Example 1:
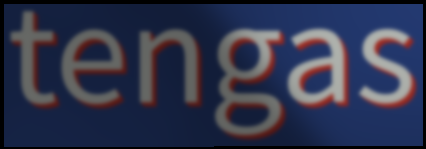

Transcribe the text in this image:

tengas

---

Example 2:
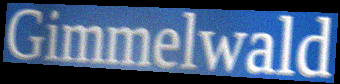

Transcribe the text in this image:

Gimmelwald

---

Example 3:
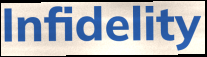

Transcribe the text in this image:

Infidelity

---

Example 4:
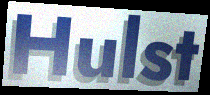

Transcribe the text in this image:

Hulst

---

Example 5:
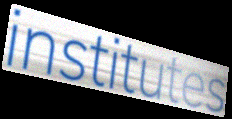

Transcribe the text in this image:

institutes